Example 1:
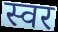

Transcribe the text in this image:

स्वर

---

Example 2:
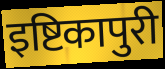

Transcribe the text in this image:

इष्टिकापुरी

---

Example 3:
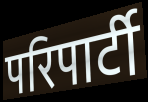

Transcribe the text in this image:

परिपार्टी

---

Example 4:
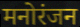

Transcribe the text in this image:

मनोरंजन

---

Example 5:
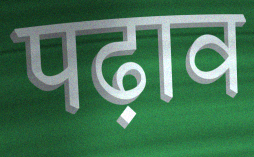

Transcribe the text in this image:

पढ़ाव